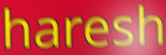
haresh